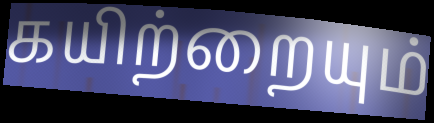
கயிற்றையும்